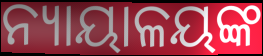
ନ୍ୟାୟାଳୟଙ୍କ